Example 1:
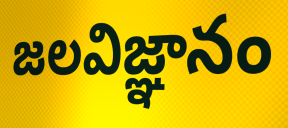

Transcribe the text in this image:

జలవిజ్ఞానం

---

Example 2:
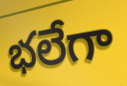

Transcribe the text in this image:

భలేగా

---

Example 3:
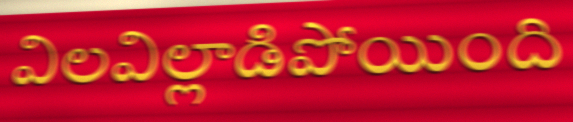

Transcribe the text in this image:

విలవిల్లాడిపోయింది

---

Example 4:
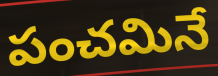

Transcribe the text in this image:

పంచమినే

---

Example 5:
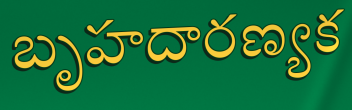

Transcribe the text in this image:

బృహదారణ్యక